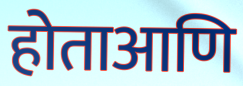
होताआणि